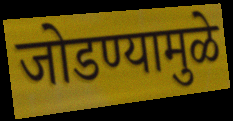
जोडण्यामुळे